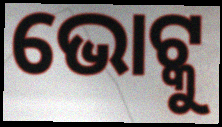
ଭୋଟ୍କୁ